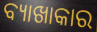
ବ୍ୟାଖାକାର